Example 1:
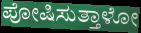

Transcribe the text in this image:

ಪೋಷಿಸುತ್ತಾಳೋ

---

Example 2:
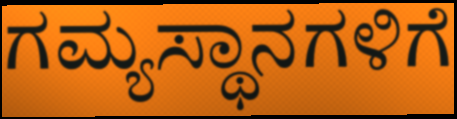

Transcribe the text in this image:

ಗಮ್ಯಸ್ಥಾನಗಳಿಗೆ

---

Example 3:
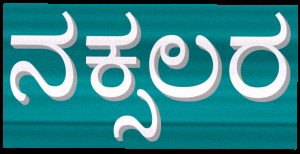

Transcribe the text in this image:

ನಕ್ಸಲರ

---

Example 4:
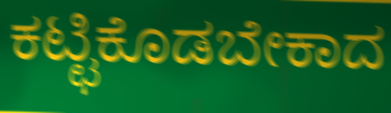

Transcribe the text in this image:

ಕಟ್ಟಿಕೊಡಬೇಕಾದ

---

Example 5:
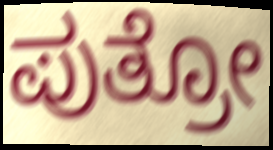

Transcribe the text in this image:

ಪುತ್ರೋ